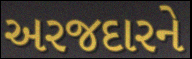
અરજદારને